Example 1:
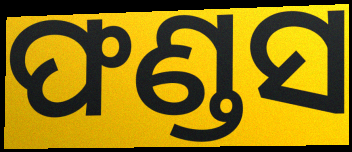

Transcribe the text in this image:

ଫଣ୍ଡସ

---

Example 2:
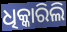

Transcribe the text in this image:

ଧିକ୍କାରିଲି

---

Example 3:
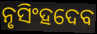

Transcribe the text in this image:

ନୃସିଂହଦେବ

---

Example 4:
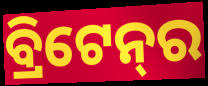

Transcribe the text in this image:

ବ୍ରିଟେନ୍‌ର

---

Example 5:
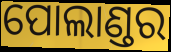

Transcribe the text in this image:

ପୋଲାଣ୍ଡର